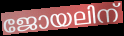
ജോയലിന്